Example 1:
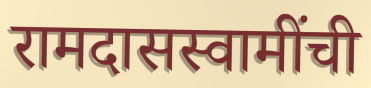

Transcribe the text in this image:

रामदासस्वामींची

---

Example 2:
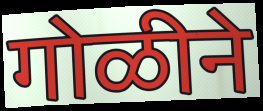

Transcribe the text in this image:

गोळीने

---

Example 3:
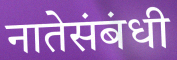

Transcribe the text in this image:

नातेसंबंधी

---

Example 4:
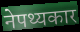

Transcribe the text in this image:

नेपथ्यकार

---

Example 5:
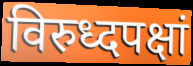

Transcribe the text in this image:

विरुध्दपक्षां